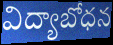
విద్యాబోధన